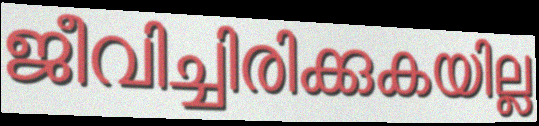
ജീവിച്ചിരിക്കുകയില്ല